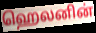
ஹெலனின்